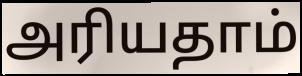
அரியதாம்